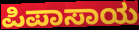
ಪಿಪಾಸಾಯ